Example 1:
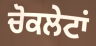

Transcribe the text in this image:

ਚੋਕਲੇਟਾਂ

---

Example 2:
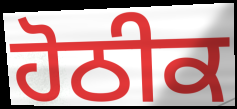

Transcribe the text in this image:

ਹੋਠੀਕ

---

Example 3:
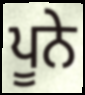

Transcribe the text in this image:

ਪੂਨੇ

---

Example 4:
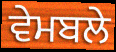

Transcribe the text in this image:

ਵੇਮਬਲੇ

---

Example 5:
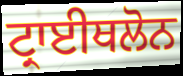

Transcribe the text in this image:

ਟ੍ਰਾਈਥਲੋਨ